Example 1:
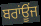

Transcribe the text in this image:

ਬਰਾਂਊਂਜ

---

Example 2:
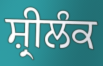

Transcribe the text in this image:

ਸ਼੍ਰੀਲੰਕ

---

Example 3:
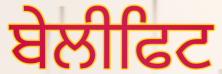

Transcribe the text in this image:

ਬੇਲੀਫਿਟ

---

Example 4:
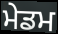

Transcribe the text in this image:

ਮੇਡਮ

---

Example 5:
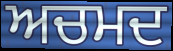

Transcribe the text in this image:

ਅਚਮਦ